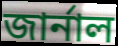
জার্নাল